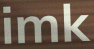
imk